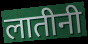
लातीनी